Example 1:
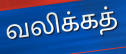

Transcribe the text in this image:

வலிக்கத்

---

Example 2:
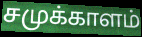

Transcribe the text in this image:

சமுக்காளம்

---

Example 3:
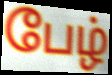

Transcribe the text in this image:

பேழ்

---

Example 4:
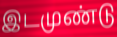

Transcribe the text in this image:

இடமுண்டு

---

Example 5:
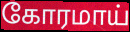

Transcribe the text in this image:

கோரமாய்